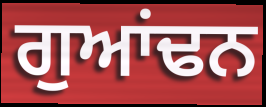
ਗੁਆਂਢਨ